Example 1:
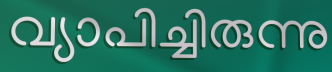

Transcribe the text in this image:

വ്യാപിച്ചിരുന്നു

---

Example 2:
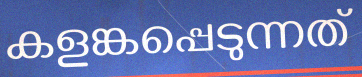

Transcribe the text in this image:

കളങ്കപ്പെടുന്നത്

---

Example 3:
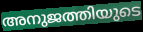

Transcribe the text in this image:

അനുജത്തിയുടെ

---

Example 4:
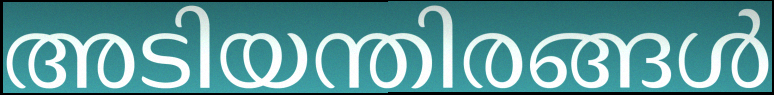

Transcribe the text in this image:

അടിയന്തിരങ്ങൾ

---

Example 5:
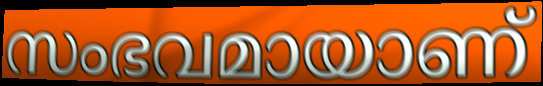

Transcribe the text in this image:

സംഭവമായാണ്